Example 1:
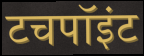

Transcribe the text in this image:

टचपॉइंट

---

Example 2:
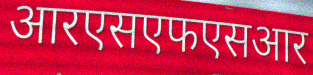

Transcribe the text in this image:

आरएसएफएसआर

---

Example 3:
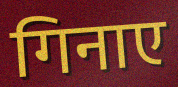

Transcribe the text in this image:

गिनाए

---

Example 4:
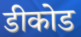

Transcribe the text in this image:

डीकोड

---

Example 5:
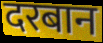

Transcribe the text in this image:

दरबान